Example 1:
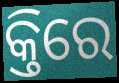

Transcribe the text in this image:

କ୍ତିରେ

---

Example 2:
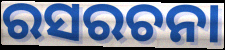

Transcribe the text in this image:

ରସରଚନା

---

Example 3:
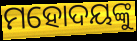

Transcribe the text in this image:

ମହୋଦୟଙ୍କୁ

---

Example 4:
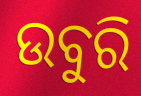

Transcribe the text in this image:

ଉବୁରି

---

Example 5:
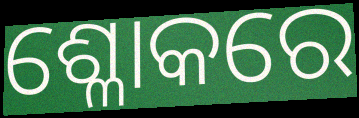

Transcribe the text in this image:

ଶ୍ଳୋକରେ